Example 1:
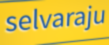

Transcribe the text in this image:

selvaraju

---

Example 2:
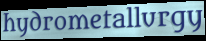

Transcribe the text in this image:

hydrometallurgy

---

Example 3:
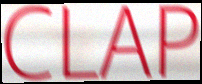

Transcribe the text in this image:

CLAP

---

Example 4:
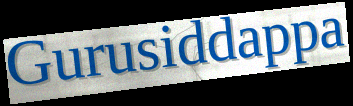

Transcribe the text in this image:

Gurusiddappa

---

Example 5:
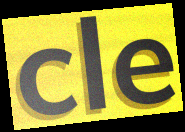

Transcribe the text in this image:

cle